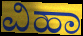
ವಿಹಾ